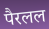
पैरलल